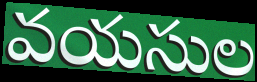
వయసుల